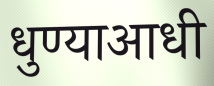
धुण्याआधी